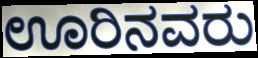
ಊರಿನವರು